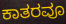
ಕಾತರವೂ